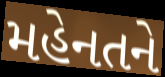
મહેનતને